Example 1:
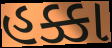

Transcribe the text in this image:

હક્કા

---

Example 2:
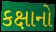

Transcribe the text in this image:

કક્ષાનો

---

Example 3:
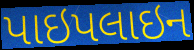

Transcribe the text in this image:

પાઇપલાઇન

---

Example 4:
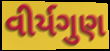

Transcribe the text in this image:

વીર્યગુણ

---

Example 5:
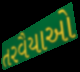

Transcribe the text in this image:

તરવૈયાઓ